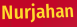
Nurjahan